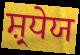
ਸ਼੍ਰਧੇਯ